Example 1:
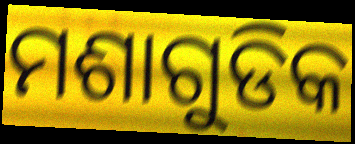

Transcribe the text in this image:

ମଶାଗୁଡିକ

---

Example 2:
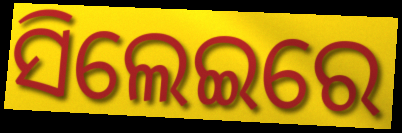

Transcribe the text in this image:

ସିଲେଇରେ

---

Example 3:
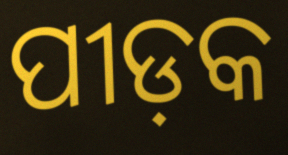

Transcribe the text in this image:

ପୀଡ଼କ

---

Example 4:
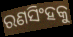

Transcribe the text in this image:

ରଣସିଂହକୁ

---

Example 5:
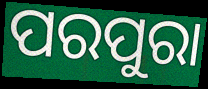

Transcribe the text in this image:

ପରପୁରା